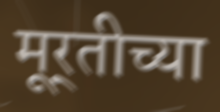
मूर्तीच्या